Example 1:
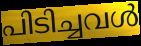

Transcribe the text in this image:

പിടിച്ചവൾ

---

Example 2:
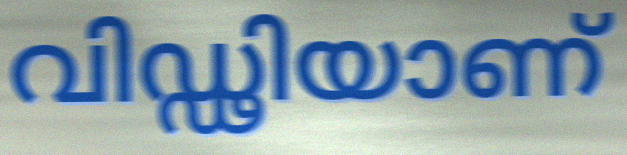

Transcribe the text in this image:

വിഡ്ഢിയാണ്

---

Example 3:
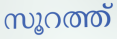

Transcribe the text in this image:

സൂറത്ത്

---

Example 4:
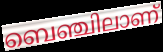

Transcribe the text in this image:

ബെഞ്ചിലാണ്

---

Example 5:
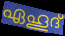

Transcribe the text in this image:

ഏഹൂദ്